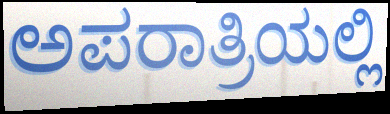
ಅಪರಾತ್ರಿಯಲ್ಲಿ